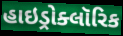
હાઇડ્રોક્લૉરિક